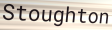
Stoughton